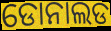
ଡୋନାଲଡ